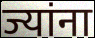
ज्यांना